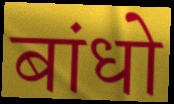
बांधो